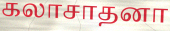
கலாசாதனா